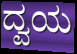
ದ್ವಯ